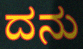
ದನು